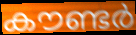
കൗണ്ടർ